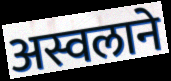
अस्वलाने